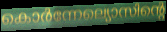
കൊർന്നേല്യൊസിന്റെ